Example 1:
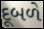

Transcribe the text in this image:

દૂબળે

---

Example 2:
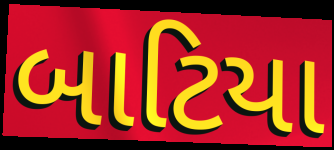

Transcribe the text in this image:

બાટિયા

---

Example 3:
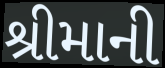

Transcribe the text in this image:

શ્રીમાની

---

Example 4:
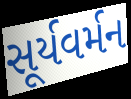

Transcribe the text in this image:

સૂર્યવર્મન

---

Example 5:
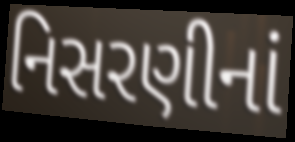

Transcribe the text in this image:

નિસરણીનાં